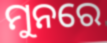
ମୁନରେ